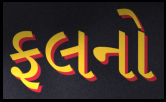
ફલનો